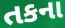
તકના